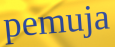
pemuja